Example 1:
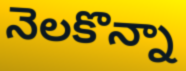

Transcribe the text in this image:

నెలకొన్నా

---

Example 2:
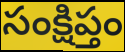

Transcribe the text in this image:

సంక్షిప్తం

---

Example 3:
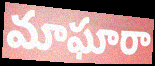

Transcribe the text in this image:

మాఘారా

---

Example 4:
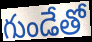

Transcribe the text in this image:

గుండేతో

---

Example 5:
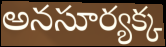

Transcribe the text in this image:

అనసూర్యక్క